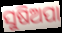
ସୁଷିଅପା